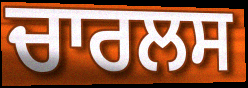
ਚਾਰਲਸ